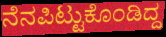
ನೆನಪಿಟ್ಟುಕೊಂಡಿದ್ದ